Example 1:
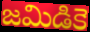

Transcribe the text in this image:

జమిడికె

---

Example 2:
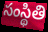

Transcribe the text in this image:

సంస్థితి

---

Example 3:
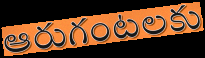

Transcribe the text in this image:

ఆరుగంటలకు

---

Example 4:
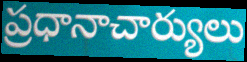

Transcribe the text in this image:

ప్రధానాచార్యులు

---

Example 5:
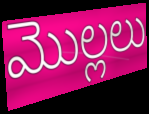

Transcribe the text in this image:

మొల్లలు